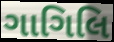
ગાગિલિ